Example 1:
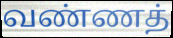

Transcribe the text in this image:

வண்ணத்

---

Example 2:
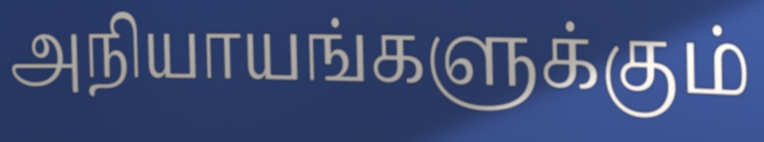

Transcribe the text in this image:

அநியாயங்களுக்கும்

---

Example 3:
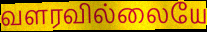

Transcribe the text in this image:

வளரவில்லையே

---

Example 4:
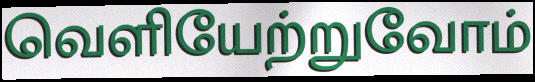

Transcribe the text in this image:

வெளியேற்றுவோம்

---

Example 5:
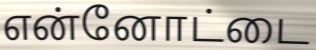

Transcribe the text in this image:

என்னோட்டை